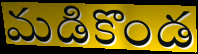
మడికొండ